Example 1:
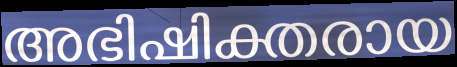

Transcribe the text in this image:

അഭിഷിക്തരായ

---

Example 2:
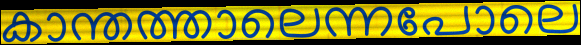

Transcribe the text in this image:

കാന്തത്താലെന്നപോലെ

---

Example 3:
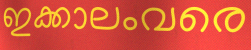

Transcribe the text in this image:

ഇക്കാലംവരെ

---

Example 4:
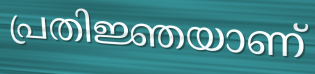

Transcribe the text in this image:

പ്രതിജ്ഞയാണ്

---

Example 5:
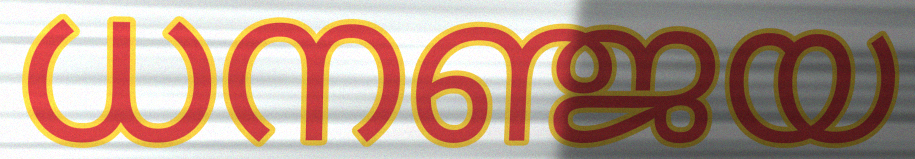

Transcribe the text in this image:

ധനഞ്ജയ